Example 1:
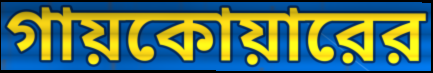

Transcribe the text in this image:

গায়কোয়ারের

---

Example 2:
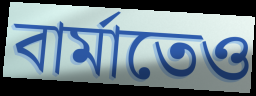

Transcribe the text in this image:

বার্মাতেও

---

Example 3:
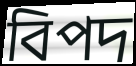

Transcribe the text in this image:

বিপদ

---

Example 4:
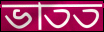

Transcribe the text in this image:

ভাতত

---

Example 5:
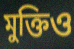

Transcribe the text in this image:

মুক্তিও